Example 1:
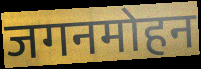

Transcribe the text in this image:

जगनमोहन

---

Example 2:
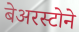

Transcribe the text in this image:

बेअरस्टोने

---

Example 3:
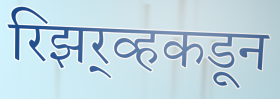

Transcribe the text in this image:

रिझर्व्हकडून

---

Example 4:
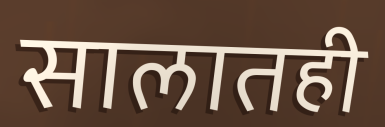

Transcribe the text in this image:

सालातही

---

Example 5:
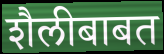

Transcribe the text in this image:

शैलीबाबत